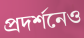
প্রদর্শনেও